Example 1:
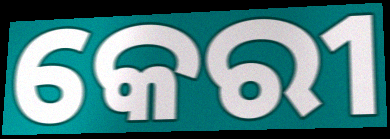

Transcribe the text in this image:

କେରୀ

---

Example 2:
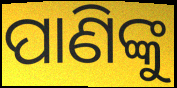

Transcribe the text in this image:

ପାଣିଙ୍କୁ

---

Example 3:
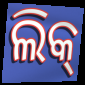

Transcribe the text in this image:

ଲିକ୍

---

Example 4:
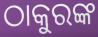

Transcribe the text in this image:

ଠାକୁରଙ୍କ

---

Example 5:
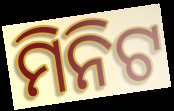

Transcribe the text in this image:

ମିନିଟ